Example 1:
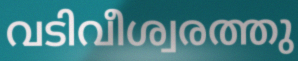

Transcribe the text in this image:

വടിവീശ്വരത്തു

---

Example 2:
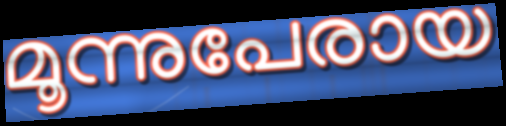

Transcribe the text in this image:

മൂന്നുപേരായ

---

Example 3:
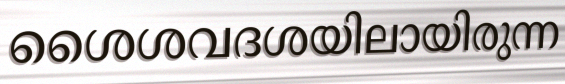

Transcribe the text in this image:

ശൈശവദശയിലായിരുന്ന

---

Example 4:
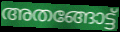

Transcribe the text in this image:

അതങ്ങോട്ട്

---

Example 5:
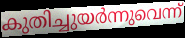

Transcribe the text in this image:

കുതിച്ചുയർന്നുവെന്ന്